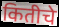
कितीचे